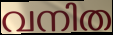
വനിത